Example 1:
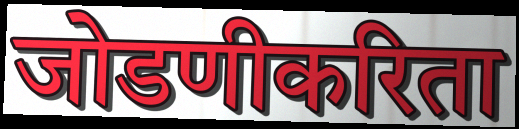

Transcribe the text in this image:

जोडणीकरिता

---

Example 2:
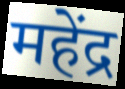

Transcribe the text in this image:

महेंद्र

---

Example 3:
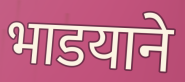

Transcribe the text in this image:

भाडयाने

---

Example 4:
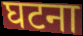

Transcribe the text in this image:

घटना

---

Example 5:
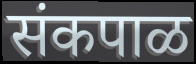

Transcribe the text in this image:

संकपाळ